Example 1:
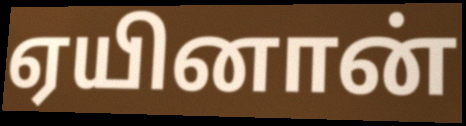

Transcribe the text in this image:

ஏயினான்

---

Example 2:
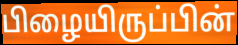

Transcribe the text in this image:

பிழையிருப்பின்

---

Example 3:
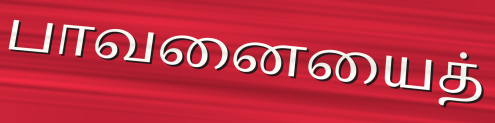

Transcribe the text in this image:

பாவனையைத்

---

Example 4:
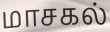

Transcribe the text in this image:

மாசகல்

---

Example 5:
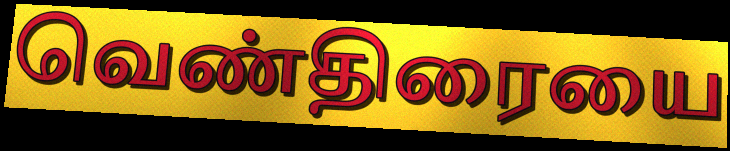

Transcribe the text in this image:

வெண்திரையை